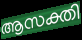
ആസക്തി